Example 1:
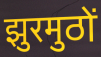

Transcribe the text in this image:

झुरमुठों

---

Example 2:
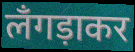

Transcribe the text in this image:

लँगड़ाकर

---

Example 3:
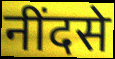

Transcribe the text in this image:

नींदसे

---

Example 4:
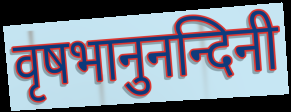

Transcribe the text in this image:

वृषभानुनन्दिनी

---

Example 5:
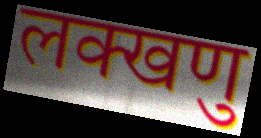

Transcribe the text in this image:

लक्खणु